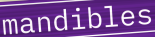
mandibles